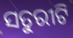
ସତୁରୀଟି